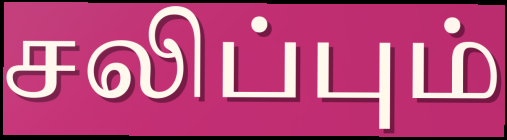
சலிப்பும்